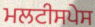
ਮਲਟੀਸਪੇਸ